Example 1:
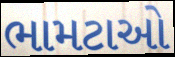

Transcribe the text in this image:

ભામટાઓ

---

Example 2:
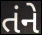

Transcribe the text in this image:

તંને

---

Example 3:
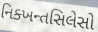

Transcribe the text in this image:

નિક્ખન્તસિલેસો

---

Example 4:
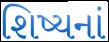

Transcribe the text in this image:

શિષ્યનાં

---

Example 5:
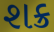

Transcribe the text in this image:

શક્ર